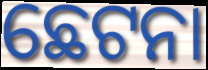
ଛେଟନା